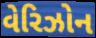
વેરિઝોન